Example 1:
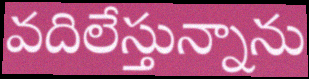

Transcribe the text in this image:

వదిలేస్తున్నాను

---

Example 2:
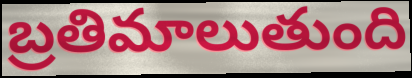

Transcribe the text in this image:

బ్రతిమాలుతుంది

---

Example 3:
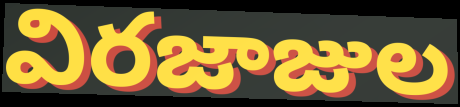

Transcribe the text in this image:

విరజాజుల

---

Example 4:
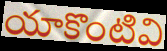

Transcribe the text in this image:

యాకొంటివి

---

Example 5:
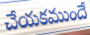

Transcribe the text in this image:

చేయకముందే